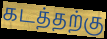
கடத்தற்கு